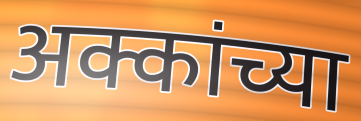
अक्कांच्या